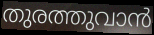
തുരത്തുവാൻ